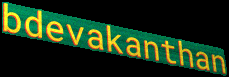
bdevakanthan